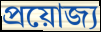
প্রয়োজ্য